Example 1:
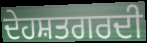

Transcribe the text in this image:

ਦੇਹਸ਼ਤਗਰਦੀ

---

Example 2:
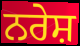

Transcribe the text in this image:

ਨਰੇਸ਼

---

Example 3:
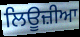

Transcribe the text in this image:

ਲਿਊਜ਼ੀਆ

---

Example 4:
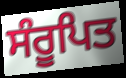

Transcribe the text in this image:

ਸੰਰੂਪਿਤ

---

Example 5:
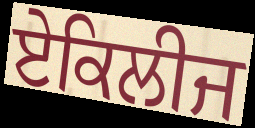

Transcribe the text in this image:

ਏਕਿਲੀਜ